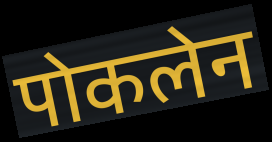
पोकलेन